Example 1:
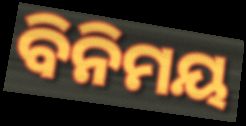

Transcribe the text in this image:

ବିନିମୟ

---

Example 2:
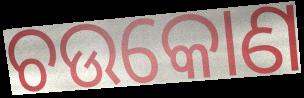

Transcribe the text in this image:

ଚଉକୋଣ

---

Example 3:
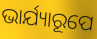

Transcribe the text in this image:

ଭାର୍ଯ୍ୟାରୂପେ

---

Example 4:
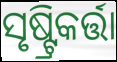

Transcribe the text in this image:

ସୃଷ୍ଟ୍ରିକର୍ତ୍ତା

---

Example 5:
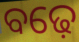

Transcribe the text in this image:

ବଢ଼େ